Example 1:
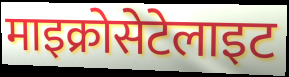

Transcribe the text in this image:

माइक्रोसेटेलाइट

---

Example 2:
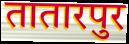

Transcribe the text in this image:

तातारपुर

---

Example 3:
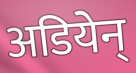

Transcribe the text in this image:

अडियेन्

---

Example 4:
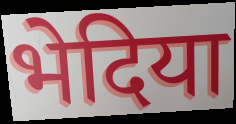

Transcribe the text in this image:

भेदिया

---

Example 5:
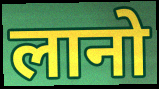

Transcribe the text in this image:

लानो